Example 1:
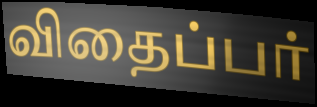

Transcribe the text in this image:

விதைப்பர்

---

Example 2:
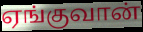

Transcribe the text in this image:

ஏங்குவான்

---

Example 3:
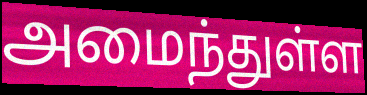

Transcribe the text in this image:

அமைந்துள்ள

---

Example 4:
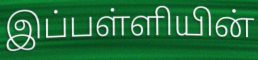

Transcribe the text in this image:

இப்பள்ளியின்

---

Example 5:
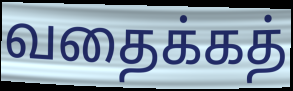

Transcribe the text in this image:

வதைக்கத்